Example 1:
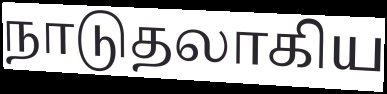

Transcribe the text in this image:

நாடுதலாகிய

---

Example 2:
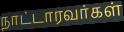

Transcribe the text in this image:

நாட்டாரவர்கள்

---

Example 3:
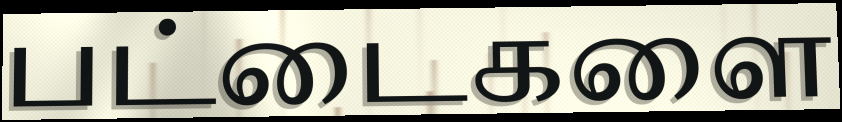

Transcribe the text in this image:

பட்டைகளை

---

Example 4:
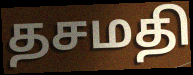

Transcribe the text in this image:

தசமதி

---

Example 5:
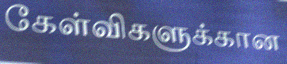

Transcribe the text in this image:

கேள்விகளுக்கான